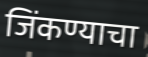
जिंकण्याचा